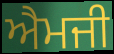
ਐਮਜੀ